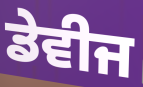
ਡੇਵੀਜ